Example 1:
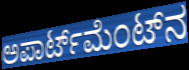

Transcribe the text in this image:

ಅಪಾರ್ಟ್‌ಮೆಂಟ್‌ನ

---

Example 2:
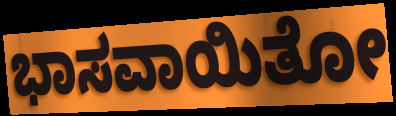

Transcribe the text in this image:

ಭಾಸವಾಯಿತೋ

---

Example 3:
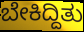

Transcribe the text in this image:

ಬೇಕಿದ್ದಿತು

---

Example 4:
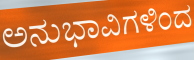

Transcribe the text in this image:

ಅನುಭಾವಿಗಳಿಂದ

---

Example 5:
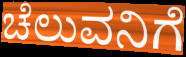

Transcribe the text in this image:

ಚೆಲುವನಿಗೆ